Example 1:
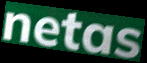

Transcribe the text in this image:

netas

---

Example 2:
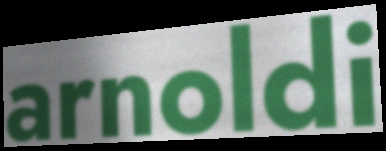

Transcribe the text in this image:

arnoldi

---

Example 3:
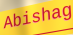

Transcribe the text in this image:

Abishag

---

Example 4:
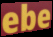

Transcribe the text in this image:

ebe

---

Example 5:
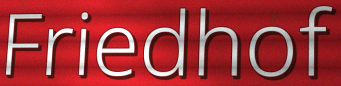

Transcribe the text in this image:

Friedhof